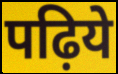
पढ़िये